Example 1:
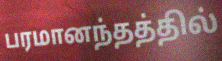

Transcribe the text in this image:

பரமானந்தத்தில்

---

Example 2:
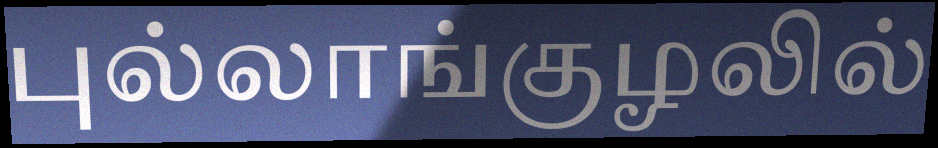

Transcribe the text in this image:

புல்லாங்குழலில்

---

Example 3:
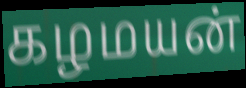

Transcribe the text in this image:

கழமயன்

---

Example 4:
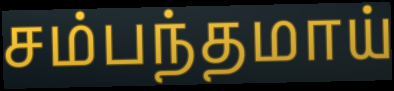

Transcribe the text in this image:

சம்பந்தமாய்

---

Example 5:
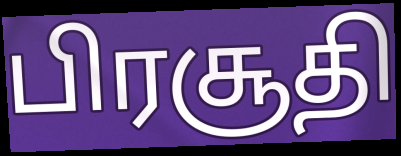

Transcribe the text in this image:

பிரசூதி